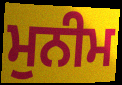
ਮੁਨੀਮ